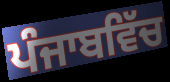
ਪੰਜਾਬਵਿੱਚ